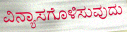
ವಿನ್ಯಾಸಗೊಳಿಸುವುದು